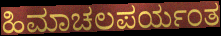
ಹಿಮಾಚಲಪರ್ಯಂತ